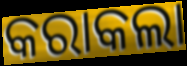
କରାକଲା